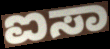
ಐಸಾ